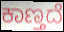
ಕಾಣ್ತದೆ